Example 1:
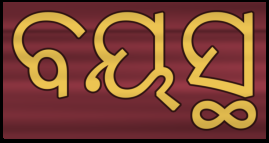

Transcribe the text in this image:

ବୟସ୍ଥ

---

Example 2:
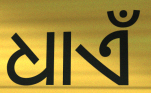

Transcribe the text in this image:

ଧାଏଁ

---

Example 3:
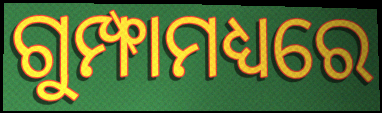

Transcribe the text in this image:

ଗୁମ୍ଫାମଧ୍ୟରେ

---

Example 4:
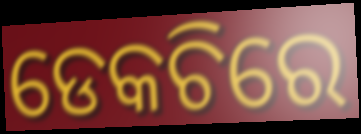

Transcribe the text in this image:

ଡେକଚିରେ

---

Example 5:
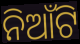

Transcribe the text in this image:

ନିଆଁଟି